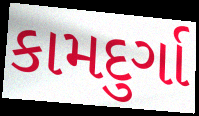
કામદુર્ગા